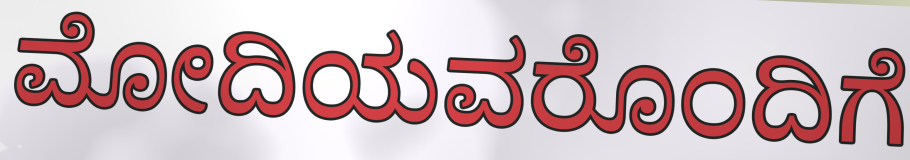
ಮೋದಿಯವರೊಂದಿಗೆ